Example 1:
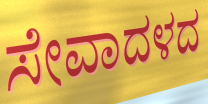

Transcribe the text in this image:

ಸೇವಾದಳದ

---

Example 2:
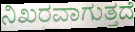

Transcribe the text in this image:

ನಿಖರವಾಗುತ್ತದೆ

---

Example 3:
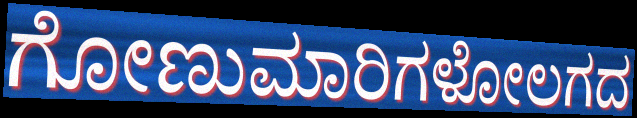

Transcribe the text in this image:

ಗೋಣುಮಾರಿಗಳೋಲಗದ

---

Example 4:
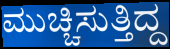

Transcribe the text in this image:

ಮುಚ್ಚಿಸುತ್ತಿದ್ದ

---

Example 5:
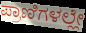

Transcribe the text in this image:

ಪ್ರಾಣಿಗಳಲ್ಲೇ